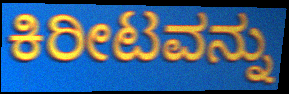
ಕಿರೀಟವನ್ನು